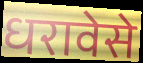
धरावेसे